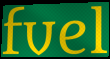
fuel